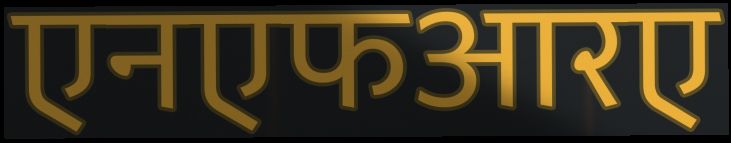
एनएफआरए